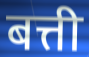
बत्ती